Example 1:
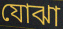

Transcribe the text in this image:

যোঝা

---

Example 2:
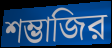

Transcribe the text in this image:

শম্ভাজির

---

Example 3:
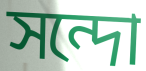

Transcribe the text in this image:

সন্দো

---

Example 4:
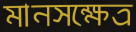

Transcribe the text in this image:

মানসক্ষেত্র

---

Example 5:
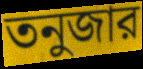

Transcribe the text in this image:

তনুজার